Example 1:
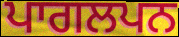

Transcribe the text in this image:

ਪਾਗਲਪਨ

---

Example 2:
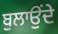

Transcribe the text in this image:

ਬੁਲਾਉਂਦੇ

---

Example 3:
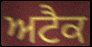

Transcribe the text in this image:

ਅਟੈਕ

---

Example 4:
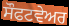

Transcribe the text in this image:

ਸੌਫਟਵੇਅਰ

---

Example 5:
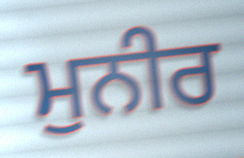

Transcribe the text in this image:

ਮੁਨੀਰ